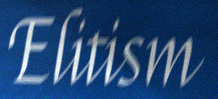
Elitism